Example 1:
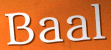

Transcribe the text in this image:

Baal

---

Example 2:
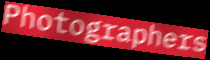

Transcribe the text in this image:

Photographers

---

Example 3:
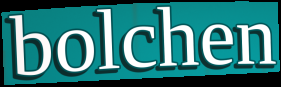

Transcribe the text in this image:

bolchen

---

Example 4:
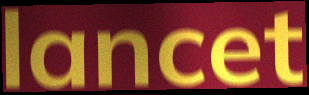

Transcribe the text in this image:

lancet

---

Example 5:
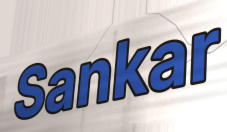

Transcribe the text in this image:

Sankar